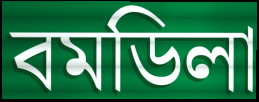
বমডিলা